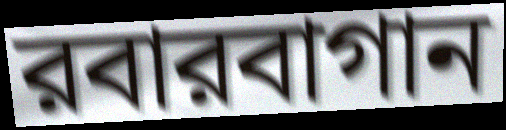
রবারবাগান